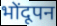
भोंदूपन